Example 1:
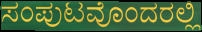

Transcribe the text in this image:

ಸಂಪುಟವೊಂದರಲ್ಲಿ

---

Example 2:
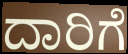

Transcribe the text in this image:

ದಾರಿಗೆ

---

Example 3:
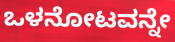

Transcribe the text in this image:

ಒಳನೋಟವನ್ನೇ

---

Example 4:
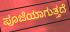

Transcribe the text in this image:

ಪೂಜೆಯಾಗುತ್ತದೆ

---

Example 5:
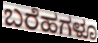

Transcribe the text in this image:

ಬರೆಹಗಳೂ